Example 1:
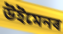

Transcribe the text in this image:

উইমেনৰ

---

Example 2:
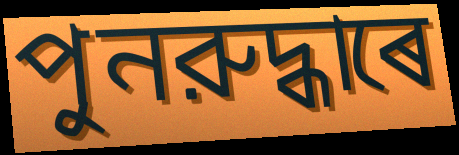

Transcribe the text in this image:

পুনৰুদ্ধাৰে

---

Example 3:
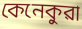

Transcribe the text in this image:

কেনেকুৱা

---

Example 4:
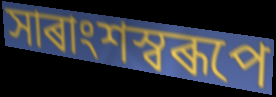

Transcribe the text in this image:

সাৰাংশস্বৰূপে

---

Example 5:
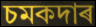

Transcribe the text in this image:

চমকদাৰ